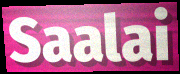
Saalai